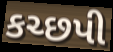
કચ્છપી